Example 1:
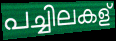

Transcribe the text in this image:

പച്ചിലകള്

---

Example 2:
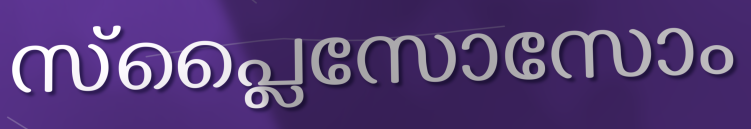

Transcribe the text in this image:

സ്പ്ലൈസോസോം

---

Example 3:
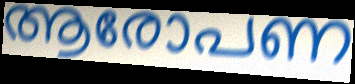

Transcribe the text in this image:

ആരോപണ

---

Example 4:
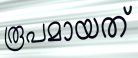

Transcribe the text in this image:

രൂപമായത്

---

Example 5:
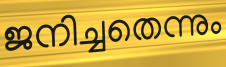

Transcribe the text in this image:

ജനിച്ചതെന്നും